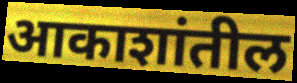
आकाशांतील